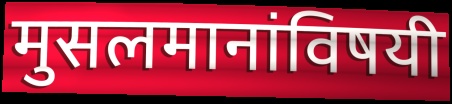
मुसलमानांविषयी